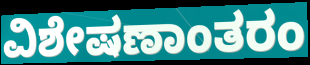
ವಿಶೇಷಣಾಂತರಂ